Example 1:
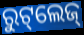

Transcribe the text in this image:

ରୁଟ୍‌ଲେଜ୍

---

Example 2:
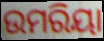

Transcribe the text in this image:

ଉମରିୟା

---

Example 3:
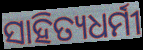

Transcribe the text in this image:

ସାହିତ୍ୟଧର୍ମୀ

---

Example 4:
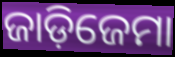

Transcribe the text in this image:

ଜାଡ଼ିଜେମା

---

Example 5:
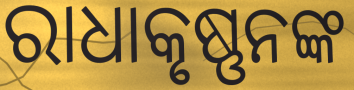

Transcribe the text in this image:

ରାଧାକୃଷ୍ଣନଙ୍କ